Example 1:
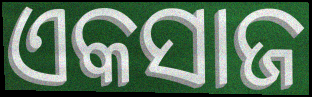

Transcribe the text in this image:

ଏକସାଜ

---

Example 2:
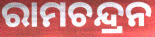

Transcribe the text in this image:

ରାମଚନ୍ଦ୍ରନ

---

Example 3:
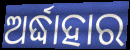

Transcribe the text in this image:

ଅର୍ଦ୍ଧାହାର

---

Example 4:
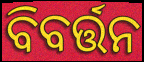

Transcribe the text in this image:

ବିବର୍ତ୍ତନ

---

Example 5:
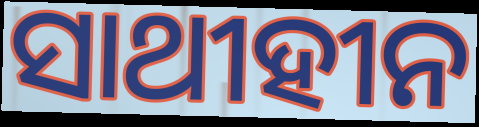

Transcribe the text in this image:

ସାଥୀହୀନ